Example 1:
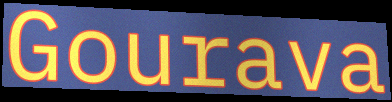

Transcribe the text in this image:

Gourava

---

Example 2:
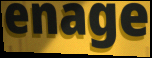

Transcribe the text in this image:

enage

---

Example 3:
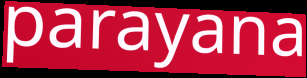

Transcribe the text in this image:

parayana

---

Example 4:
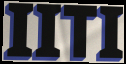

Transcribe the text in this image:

IITI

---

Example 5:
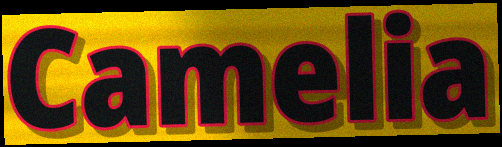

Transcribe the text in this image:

Camelia